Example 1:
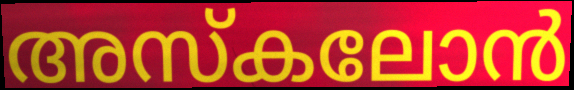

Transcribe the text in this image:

അസ്കലോൻ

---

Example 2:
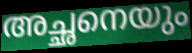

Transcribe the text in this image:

അച്ഛനെയും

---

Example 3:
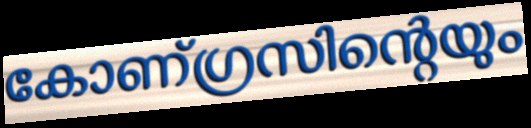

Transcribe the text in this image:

കോണ്ഗ്രസിന്റെയും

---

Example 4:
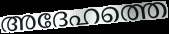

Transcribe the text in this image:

അദേഹത്തെ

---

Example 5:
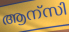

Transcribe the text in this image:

ആന്സി